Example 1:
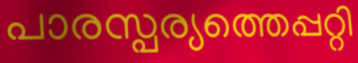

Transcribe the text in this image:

പാരസ്പര്യത്തെപ്പറ്റി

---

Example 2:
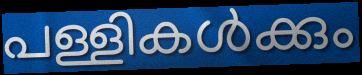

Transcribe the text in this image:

പള്ളികൾക്കും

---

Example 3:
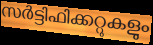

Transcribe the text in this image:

സർട്ടിഫിക്കറ്റുകളും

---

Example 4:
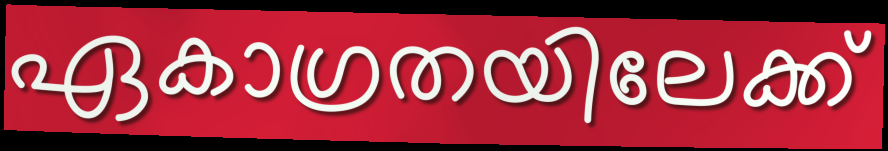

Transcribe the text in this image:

ഏകാഗ്രതയിലേക്ക്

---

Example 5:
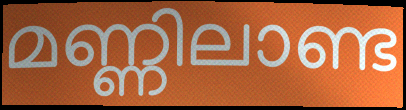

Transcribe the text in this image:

മണ്ണിലാണ്ട